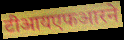
टीआयएफआरने